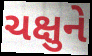
ચક્ષુને